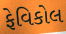
ફેવિકોલ